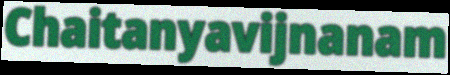
Chaitanyavijnanam